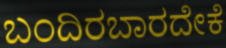
ಬಂದಿರಬಾರದೇಕೆ